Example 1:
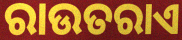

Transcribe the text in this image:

ରାଉତରାଏ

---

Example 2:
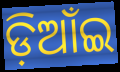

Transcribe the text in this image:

ଡ଼ିଆଁଇ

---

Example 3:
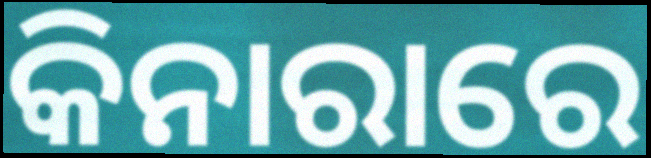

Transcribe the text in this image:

କିନାରାରେ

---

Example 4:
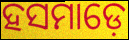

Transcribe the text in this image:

ହସମାଡ଼େ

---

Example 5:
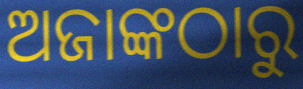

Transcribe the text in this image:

ଅଜାଙ୍କଠାରୁ